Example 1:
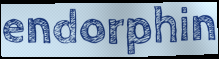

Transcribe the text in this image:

endorphin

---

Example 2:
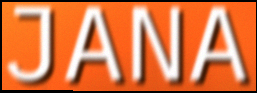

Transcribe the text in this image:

JANA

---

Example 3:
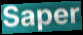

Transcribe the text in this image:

Saper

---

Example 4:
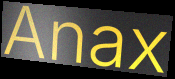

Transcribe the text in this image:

Anax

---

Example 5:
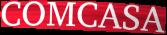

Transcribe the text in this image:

COMCASA